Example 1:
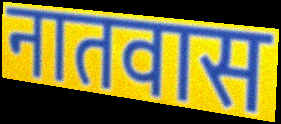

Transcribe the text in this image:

नातवास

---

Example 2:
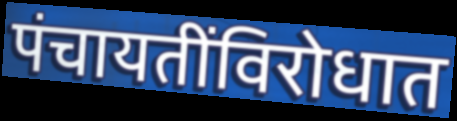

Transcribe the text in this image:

पंचायतींविरोधात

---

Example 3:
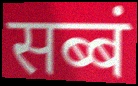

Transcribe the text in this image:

सब्बं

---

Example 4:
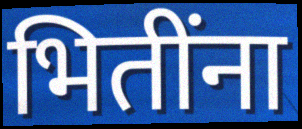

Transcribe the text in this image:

भितींना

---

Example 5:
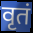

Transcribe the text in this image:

वृतं